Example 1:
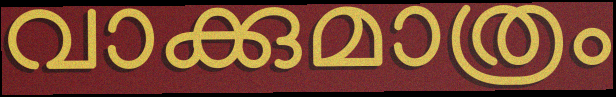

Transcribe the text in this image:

വാക്കുമാത്രം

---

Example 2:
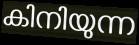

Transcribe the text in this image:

കിനിയുന്ന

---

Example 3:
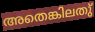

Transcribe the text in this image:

അതെങ്കിലതു്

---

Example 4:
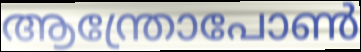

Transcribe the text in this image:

ആന്ത്രോപോൺ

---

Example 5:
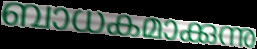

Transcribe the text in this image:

ബാധകമാക്കുന്നു